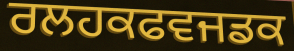
ਰਲਹਕਫਵਜਡਕ